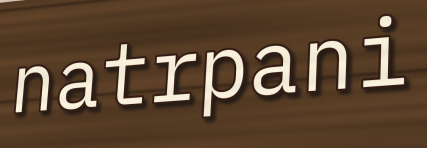
natrpani